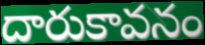
దారుకావనం